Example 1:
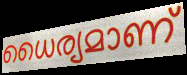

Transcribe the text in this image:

ധൈര്യമാണ്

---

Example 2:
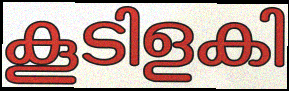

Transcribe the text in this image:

കൂടിളകി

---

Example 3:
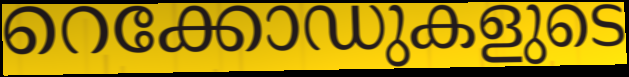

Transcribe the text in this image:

റെക്കോഡുകളുടെ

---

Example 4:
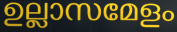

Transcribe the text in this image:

ഉല്ലാസമേളം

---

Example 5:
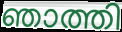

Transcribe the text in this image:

ഞാത്തി